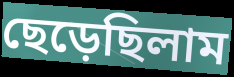
ছেড়েছিলাম